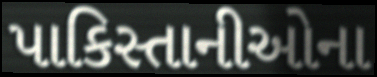
પાકિસ્તાનીઓના